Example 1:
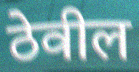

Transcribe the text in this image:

ठेवील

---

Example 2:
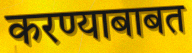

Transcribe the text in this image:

करण्याबाबत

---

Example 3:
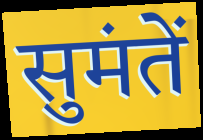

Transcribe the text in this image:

सुमंतें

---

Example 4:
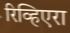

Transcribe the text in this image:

रिव्हिएरा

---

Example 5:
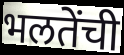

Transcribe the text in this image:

भलतेंची